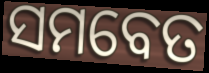
ସମବେତ